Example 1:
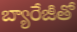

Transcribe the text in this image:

బ్యారేజీతో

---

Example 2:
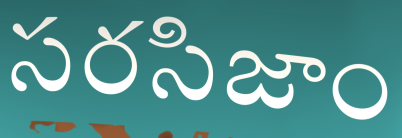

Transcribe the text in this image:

సరసిజాం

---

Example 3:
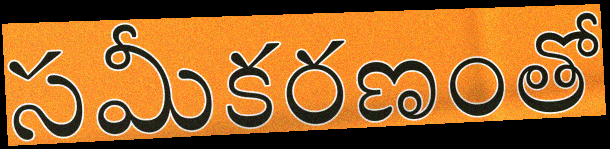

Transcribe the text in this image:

సమీకరణంతో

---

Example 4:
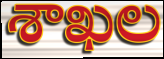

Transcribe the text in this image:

శాఖల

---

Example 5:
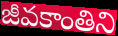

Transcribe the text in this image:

జీవకాంతిని